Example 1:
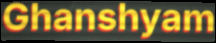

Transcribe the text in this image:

Ghanshyam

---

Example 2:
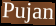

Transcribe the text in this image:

Pujan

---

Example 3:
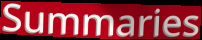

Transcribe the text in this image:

Summaries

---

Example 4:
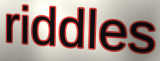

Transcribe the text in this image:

riddles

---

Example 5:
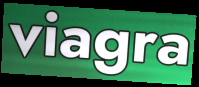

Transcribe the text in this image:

viagra